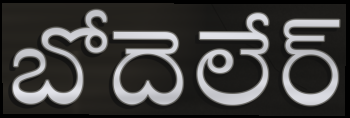
బోదెలేర్